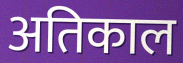
अतिकाल